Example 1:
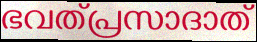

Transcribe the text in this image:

ഭവത്പ്രസാദാത്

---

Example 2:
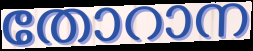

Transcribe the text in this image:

തോറാന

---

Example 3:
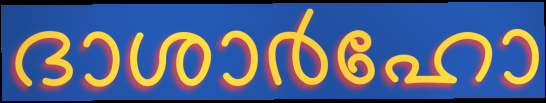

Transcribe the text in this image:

ദാശാർഹോ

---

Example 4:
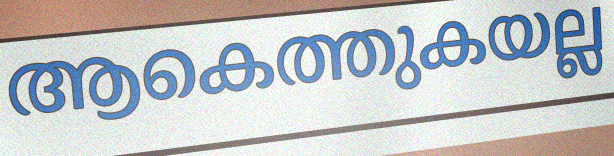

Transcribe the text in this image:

ആകെത്തുകയല്ല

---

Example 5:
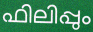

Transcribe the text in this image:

ഫിലിപ്പും